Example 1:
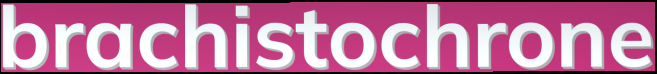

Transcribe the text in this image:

brachistochrone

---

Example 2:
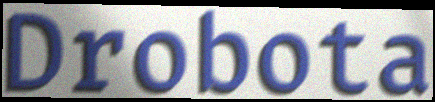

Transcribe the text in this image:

Drobota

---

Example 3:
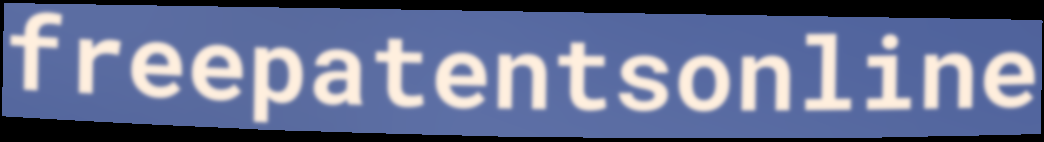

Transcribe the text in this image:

freepatentsonline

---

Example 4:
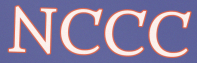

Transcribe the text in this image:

NCCC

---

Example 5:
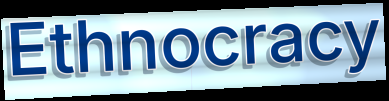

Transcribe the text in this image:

Ethnocracy